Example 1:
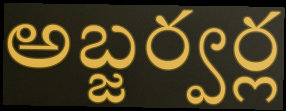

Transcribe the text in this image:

అబ్జర్వర్ల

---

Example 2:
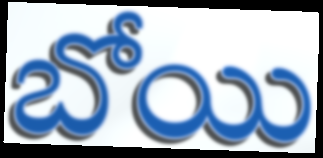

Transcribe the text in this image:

బోయి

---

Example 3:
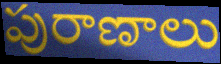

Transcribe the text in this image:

పురాణాలు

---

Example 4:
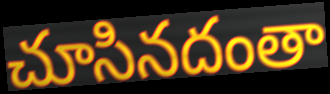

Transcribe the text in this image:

చూసినదంతా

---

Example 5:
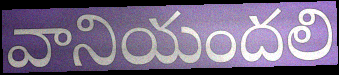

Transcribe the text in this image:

వానియందలి